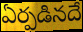
ఏర్పడినదే